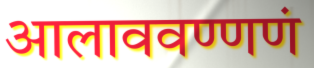
आलाववण्णणं